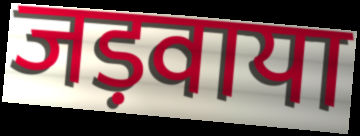
जड़वाया